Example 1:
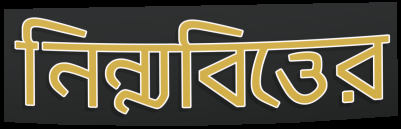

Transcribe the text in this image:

নিন্মবিত্তের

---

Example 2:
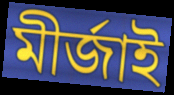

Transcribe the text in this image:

মীর্জাই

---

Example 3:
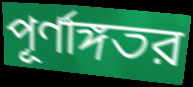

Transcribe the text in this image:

পূর্ণাঙ্গতর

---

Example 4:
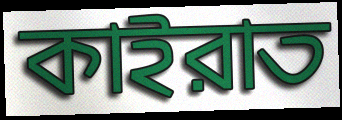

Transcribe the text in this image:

কাইরাত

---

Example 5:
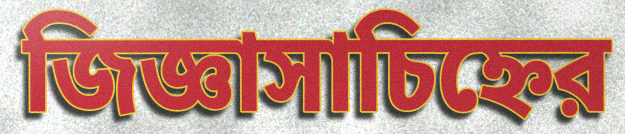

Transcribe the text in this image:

জিজ্ঞাসাচিহ্নের